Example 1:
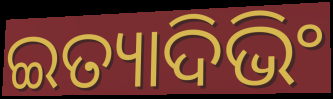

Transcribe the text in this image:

ଇତ୍ୟାଦିଭିଂ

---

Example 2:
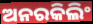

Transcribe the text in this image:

ଅନରକିଲିଂ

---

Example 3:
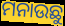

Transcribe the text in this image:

ମନାଉଛୁ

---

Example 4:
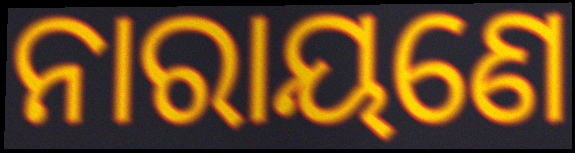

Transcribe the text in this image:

ନାରାୟଣେ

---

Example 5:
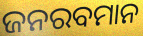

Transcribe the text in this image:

ଜନରବମାନ